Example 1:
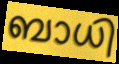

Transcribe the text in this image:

ബാധി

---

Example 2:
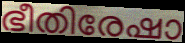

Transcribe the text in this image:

ഭീതിരേഷാ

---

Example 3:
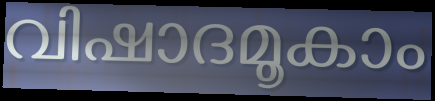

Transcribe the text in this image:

വിഷാദമൂകാം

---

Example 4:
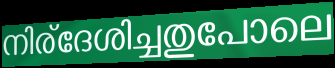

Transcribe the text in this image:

നിര്ദേശിച്ചതുപോലെ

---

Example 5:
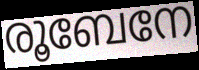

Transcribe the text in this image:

രൂബേനേ